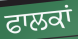
ਫਾਲਕਾਂ